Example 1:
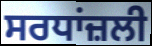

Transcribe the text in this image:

ਸਰਧਾਂਜ਼ਲੀ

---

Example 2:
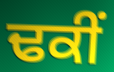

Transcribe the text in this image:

ਢਕੀਂ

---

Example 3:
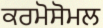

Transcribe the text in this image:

ਕਰਮੋਸੋਮਲ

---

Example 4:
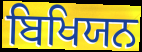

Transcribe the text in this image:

ਬਿਖਿਯਨ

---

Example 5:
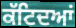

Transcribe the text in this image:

ਕੱਟਿਦਆਂ